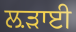
ਲ਼ੜਾਈ